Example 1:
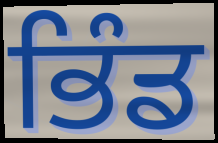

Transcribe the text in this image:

ਭਿੰਡ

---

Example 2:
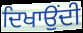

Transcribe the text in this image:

ਦਿਖਾਉਂਦੀ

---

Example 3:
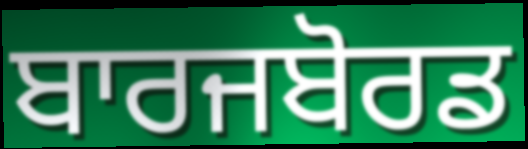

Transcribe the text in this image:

ਬਾਰਜਬੋਰਡ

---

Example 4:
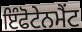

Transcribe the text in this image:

ਇੰਫੋਟੇਨਮੈਂਟ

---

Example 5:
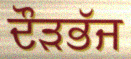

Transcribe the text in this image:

ਦੌੜਭੱਜ